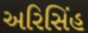
અરિસિંહ